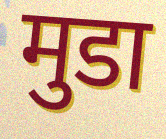
मुडा